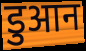
डुआन